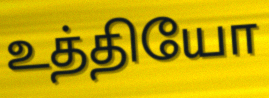
உத்தியோ